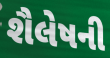
શૈલેષની